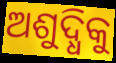
ଅଶୁଦ୍ଧିକୁ